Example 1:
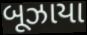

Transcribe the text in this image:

બૂઝાયા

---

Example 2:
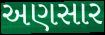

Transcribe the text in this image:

અણસાર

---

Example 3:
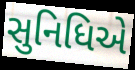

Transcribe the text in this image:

સુનિધિએ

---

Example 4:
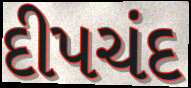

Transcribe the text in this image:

દીપચંદ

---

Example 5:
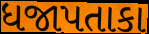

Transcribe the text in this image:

ધજાપતાકા